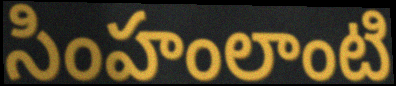
సింహంలాంటి